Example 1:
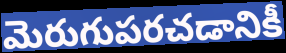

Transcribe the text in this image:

మెరుగుపరచడానికీ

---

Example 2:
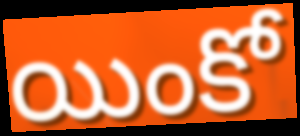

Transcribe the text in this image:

యింకో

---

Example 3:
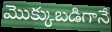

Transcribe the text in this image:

మొక్కుబడిగానే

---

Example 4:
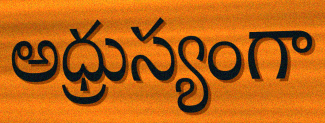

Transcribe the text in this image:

అధ్రుస్యంగా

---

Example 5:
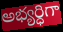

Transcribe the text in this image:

అభ్యర్ధిగా